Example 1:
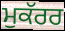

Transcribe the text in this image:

ਮੁਕੱਰਰ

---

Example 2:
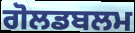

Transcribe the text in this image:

ਗੋਲਡਬਲਮ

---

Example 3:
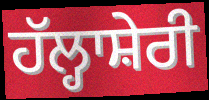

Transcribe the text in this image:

ਹੱਲ੍ਹਾਸ਼ੇਰੀ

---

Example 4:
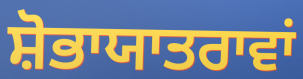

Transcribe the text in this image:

ਸ਼ੋਭਾਯਾਤਰਾਵਾਂ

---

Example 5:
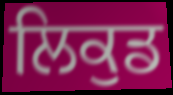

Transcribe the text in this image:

ਲਿਕੁਡ